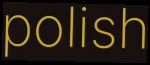
polish